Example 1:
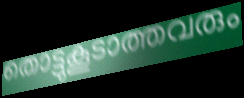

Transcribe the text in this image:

തൊട്ടുകൂടാത്തവരും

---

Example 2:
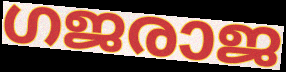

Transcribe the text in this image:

ഗജരാജ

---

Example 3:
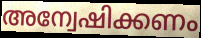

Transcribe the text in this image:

അന്വേഷിക്കണം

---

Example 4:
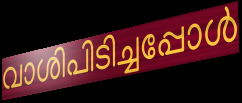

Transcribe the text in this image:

വാശിപിടിച്ചപ്പോൾ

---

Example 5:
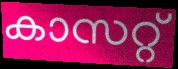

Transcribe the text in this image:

കാസറ്റ്